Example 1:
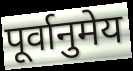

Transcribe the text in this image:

पूर्वानुमेय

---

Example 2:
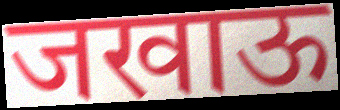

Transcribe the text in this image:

जखाऊ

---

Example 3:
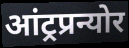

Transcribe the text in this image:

आंट्रप्रन्योर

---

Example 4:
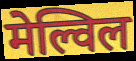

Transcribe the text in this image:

मेल्विल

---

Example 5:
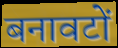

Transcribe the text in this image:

बनावटों